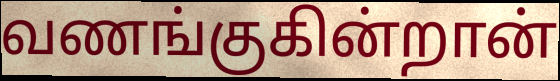
வணங்குகின்றான்